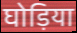
घोड़िया